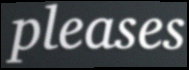
pleases